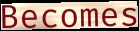
Becomes